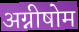
अग्नीषोम